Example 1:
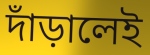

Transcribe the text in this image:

দাঁড়ালেই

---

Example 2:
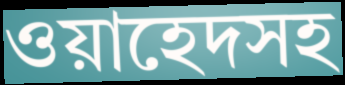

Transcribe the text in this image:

ওয়াহেদসহ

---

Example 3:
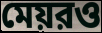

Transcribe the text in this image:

মেয়রও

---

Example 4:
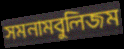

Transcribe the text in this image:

সমনামবুলিজম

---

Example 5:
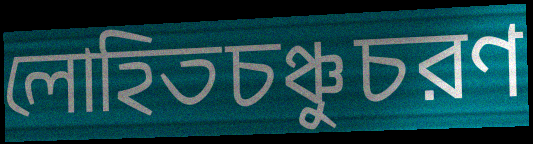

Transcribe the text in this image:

লোহিতচঞ্চুচরণ